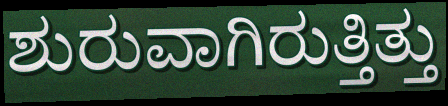
ಶುರುವಾಗಿರುತ್ತಿತ್ತು